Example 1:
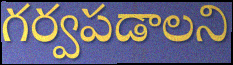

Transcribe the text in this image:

గర్వపడాలని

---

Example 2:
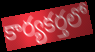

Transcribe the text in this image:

కార్యకర్తలో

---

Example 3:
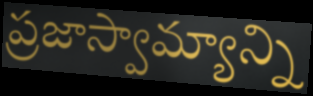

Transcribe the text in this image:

ప్రజాస్వామ్యాన్ని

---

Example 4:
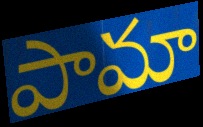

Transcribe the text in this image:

పామా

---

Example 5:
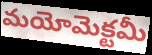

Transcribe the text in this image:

మయోమెక్టమీ